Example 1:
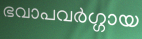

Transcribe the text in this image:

ഭവാപവർഗ്ഗായ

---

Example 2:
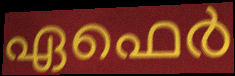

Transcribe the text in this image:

ഏഫെർ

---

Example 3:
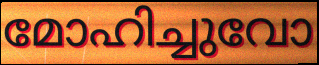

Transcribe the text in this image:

മോഹിച്ചുവോ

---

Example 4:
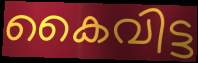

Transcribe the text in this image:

കൈവിട്ട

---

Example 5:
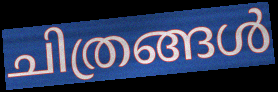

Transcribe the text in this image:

ചിത്രങ്ങൾ